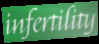
infertility